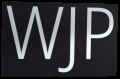
WJP